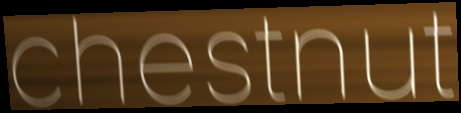
chestnut